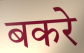
बकरे